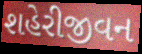
શહેરીજીવન